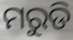
ମରୁଡି